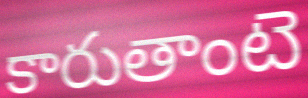
కారుతాంటె